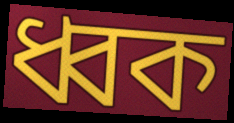
ধ্বক